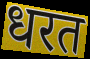
धरत